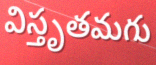
విస్తృతమగు